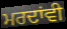
ਮਰਦਾਂਵੀ